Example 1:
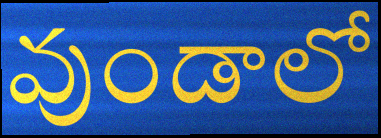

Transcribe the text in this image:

వుండాలో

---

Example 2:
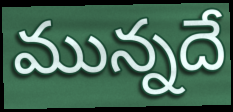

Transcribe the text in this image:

మున్నదే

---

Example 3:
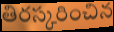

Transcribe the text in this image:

తిరస్కరించిన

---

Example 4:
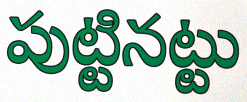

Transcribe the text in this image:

పుట్టినట్టు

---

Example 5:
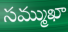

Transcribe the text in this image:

సమ్ముఖా